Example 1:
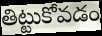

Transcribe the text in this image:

తిట్టుకోవడం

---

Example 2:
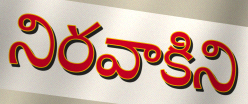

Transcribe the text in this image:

నిరవాకిని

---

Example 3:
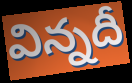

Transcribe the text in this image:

విన్నదీ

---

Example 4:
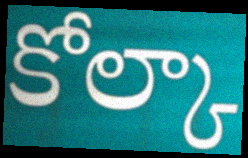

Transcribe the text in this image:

కోల్కా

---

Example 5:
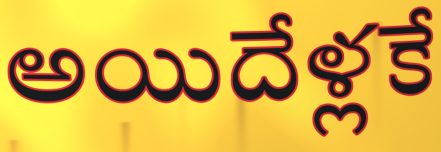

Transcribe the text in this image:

అయిదేళ్లకే